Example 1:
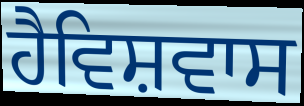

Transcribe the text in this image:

ਹੈਵਿਸ਼ਵਾਸ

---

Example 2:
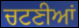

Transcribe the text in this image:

ਚਟਣੀਆਂ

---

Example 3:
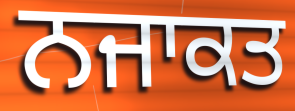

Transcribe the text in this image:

ਨਜਾਕਤ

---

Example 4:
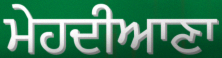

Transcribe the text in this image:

ਮੇਹਦੀਆਣਾ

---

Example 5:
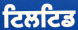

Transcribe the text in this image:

ਟਿਲਟਿਡ